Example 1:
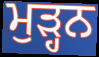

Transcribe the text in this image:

ਮੁੜ੍ਹਨ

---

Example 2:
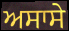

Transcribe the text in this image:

ਅਸਾਸੇ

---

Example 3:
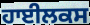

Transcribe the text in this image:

ਹਾਈਲਕਸ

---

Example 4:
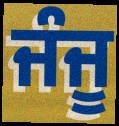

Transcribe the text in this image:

ਜੰਜੂ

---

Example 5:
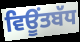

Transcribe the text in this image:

ਵਿਊਂਤਬੱਧ